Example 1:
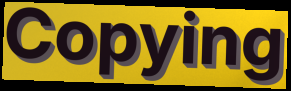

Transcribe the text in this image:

Copying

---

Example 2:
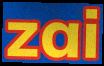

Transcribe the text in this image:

zai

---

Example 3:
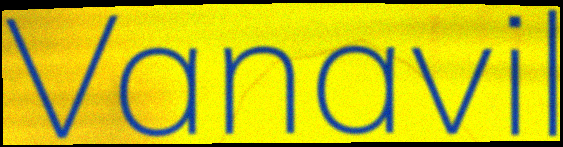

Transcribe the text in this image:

Vanavil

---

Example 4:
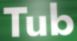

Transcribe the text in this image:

Tub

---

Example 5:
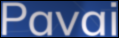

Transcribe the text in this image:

Pavai